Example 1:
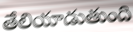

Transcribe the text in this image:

తేలియాడుతుంది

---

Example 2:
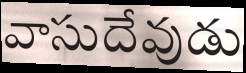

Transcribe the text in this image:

వాసుదేవుడు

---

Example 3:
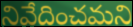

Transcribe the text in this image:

నివేదించమని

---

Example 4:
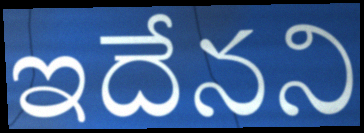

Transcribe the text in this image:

ఇదేనని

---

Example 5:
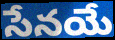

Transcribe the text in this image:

సేనయే